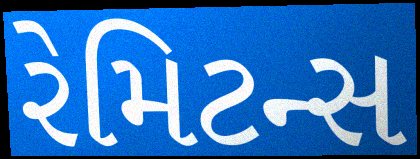
રેમિટન્સ